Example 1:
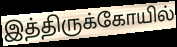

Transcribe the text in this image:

இத்திருக்கோயில்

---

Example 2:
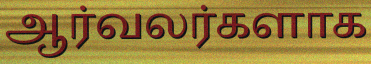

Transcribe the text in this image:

ஆர்வலர்களாக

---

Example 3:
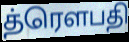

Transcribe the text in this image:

த்ரௌபதி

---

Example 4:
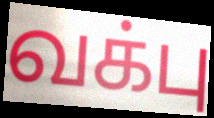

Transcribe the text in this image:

வக்பு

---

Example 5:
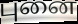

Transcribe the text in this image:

புனை